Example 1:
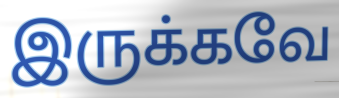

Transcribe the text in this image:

இருக்கவே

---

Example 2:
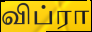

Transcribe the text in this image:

விப்ரா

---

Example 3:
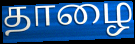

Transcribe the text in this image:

தாழை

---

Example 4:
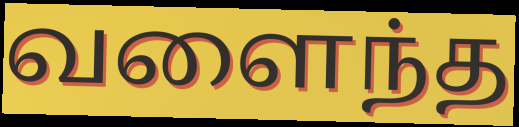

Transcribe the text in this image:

வளைந்த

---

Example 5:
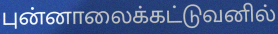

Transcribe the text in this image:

புன்னாலைக்கட்டுவனில்